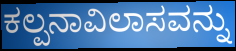
ಕಲ್ಪನಾವಿಲಾಸವನ್ನು